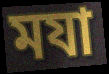
মযা